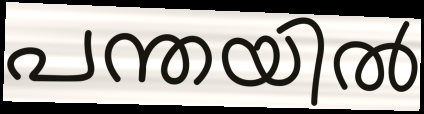
പന്തയിൽ